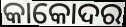
କାକୋଦର